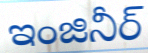
ఇంజినీర్